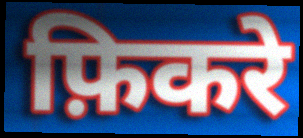
फ़िकरे